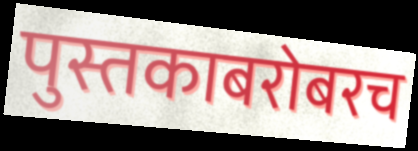
पुस्तकाबरोबरच